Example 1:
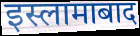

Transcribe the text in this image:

इस्लामाबाद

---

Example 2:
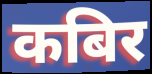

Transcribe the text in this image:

कबिर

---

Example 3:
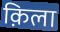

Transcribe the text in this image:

क़िला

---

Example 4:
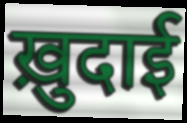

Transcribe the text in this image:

ख़ुदाई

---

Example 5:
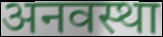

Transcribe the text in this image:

अनवस्था